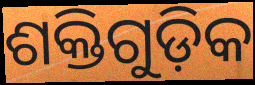
ଶକ୍ତିଗୁଡ଼ିକ